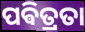
ପଵିତ୍ରତା